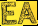
EA